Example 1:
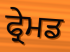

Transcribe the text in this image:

ਫ੍ਰੇਮਡ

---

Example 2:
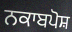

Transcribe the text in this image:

ਨਕਾਬਪੋਸ਼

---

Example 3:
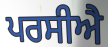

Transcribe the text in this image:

ਪਰਸੀਐ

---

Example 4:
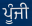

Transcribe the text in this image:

ਪੂੰਜੀ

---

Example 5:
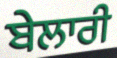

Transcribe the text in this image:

ਬੇਲਾਰੀ